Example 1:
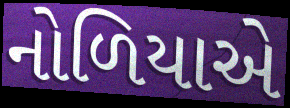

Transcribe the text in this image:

નોળિયાએ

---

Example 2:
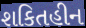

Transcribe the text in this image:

શકિતહીન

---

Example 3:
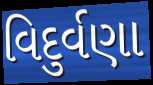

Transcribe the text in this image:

વિદુર્વણા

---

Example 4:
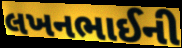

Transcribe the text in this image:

લખનભાઈની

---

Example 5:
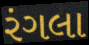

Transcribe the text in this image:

રંગલા